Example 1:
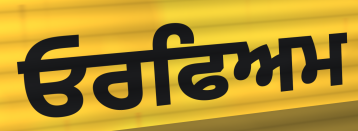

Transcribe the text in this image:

ਓਰਫਿਅਮ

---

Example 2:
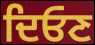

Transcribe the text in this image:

ਦਿਓਣ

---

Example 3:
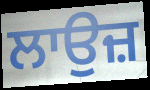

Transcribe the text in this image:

ਲਾਉਜ਼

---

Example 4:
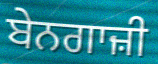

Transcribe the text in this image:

ਬੇਨਗਾਜ਼ੀ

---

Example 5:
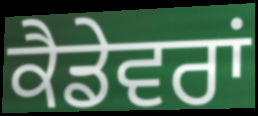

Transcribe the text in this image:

ਕੈਡੇਵਰਾਂ